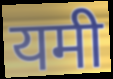
यमी